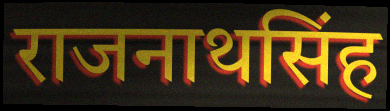
राजनाथसिंह